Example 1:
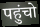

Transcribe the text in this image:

पहुंचो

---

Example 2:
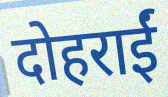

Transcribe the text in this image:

दोहराईं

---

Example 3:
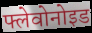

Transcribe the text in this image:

फ्लेवोनोइड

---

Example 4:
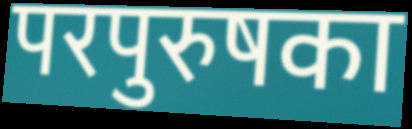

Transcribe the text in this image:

परपुरुषका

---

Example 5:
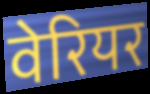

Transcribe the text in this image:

वेरियर